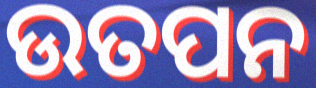
ଉତପନ